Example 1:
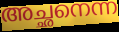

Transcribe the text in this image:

അച്ഛനെന്ന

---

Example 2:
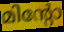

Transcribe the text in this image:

മിന്റോ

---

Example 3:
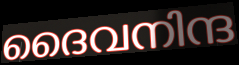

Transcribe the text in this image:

ദൈവനിന്ദ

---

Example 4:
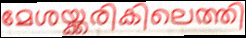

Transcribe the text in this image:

മേശയ്ക്കരികിലെത്തി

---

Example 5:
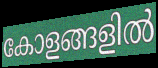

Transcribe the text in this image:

കോളങ്ങളിൽ